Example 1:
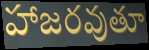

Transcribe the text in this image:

హాజరవుతూ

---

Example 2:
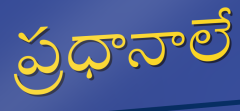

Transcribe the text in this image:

ప్రధానాలే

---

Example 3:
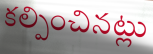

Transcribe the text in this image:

కల్పించినట్లు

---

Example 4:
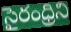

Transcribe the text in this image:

సైరంధ్రిని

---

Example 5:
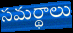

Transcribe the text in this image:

సమర్థాలు